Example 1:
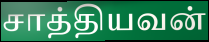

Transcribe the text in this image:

சாத்தியவன்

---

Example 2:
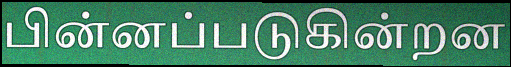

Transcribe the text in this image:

பின்னப்படுகின்றன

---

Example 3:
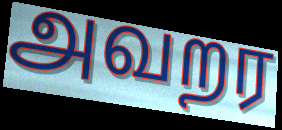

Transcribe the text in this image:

அவறர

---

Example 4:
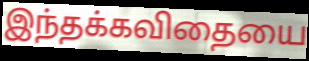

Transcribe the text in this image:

இந்தக்கவிதையை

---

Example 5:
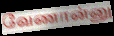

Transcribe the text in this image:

வேணான்னு